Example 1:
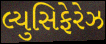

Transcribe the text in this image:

લ્યુસિફેરેઝ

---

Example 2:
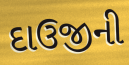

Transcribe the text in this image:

દાઉજીની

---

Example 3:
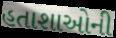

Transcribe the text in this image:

હતાશાઓની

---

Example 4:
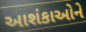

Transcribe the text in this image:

આશંકાઓને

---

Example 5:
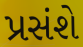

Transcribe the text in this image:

પ્રસંશે